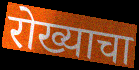
रोख्याचा